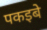
पकइबे